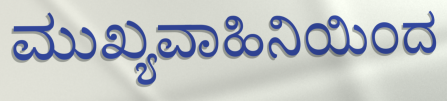
ಮುಖ್ಯವಾಹಿನಿಯಿಂದ